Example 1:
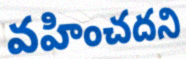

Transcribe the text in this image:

వహించదని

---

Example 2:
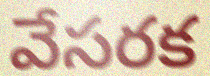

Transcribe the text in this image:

వేసరక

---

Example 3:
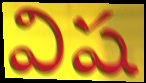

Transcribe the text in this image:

విష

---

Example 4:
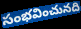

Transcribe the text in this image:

సంభవించునది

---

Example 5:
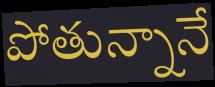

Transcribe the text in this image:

పోతున్నానే